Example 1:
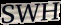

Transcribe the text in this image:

SWH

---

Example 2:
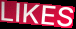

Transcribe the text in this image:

LIKES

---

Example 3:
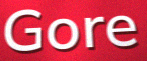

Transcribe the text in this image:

Gore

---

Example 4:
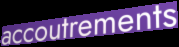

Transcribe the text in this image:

accoutrements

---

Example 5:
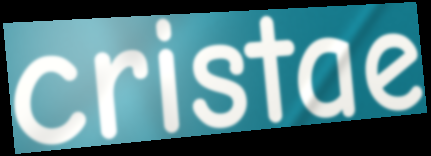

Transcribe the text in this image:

cristae